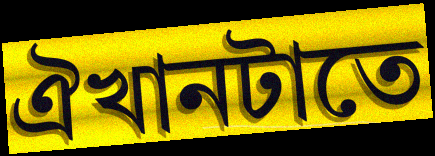
ঐখানটাতে